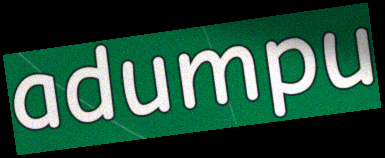
adumpu